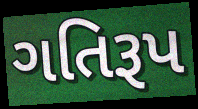
ગતિરૂપ